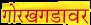
गोरखगडावर